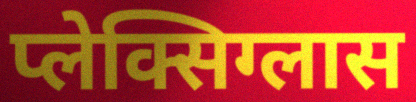
प्लेक्सिग्लास